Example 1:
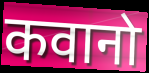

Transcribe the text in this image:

कवानो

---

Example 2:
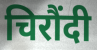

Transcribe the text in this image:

चिरौंदी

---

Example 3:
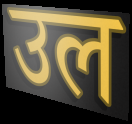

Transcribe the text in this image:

उल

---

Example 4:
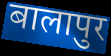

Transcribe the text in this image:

बालापुर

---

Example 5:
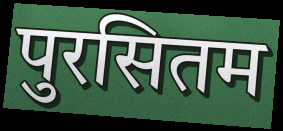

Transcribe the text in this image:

पुरसितम